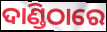
ଦାଣ୍ଡିଠାରେ